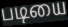
படியை